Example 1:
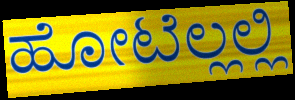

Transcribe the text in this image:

ಹೋಟೆಲ್ಲಲ್ಲಿ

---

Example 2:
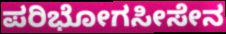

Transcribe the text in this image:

ಪರಿಭೋಗಸೀಸೇನ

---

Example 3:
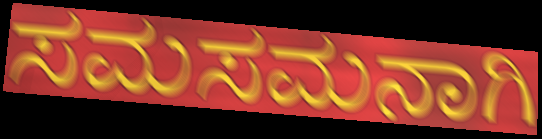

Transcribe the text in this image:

ಸಮಸಮನಾಗಿ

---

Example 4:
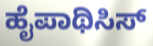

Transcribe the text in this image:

ಹೈಪಾಥಿಸಿಸ್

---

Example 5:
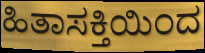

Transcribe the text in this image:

ಹಿತಾಸಕ್ತಿಯಿಂದ